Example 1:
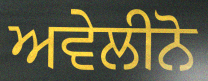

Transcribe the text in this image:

ਅਵੇਲੀਨੋ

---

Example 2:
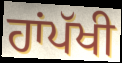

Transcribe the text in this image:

ਹਾਂਪੱਖੀ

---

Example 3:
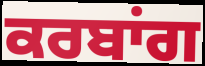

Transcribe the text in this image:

ਕਰਬਾਂਗ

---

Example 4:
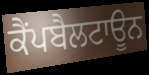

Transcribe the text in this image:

ਕੈਂਪਬੈਲਟਾਊਨ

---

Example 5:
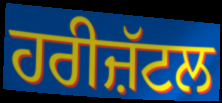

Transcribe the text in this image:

ਹਰੀਜ਼ੱਟਲ